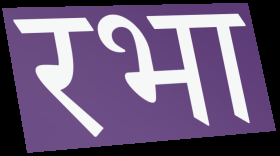
रभा